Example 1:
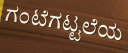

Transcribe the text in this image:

ಗಂಟೆಗಟ್ಟಲೆಯ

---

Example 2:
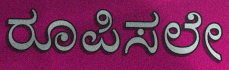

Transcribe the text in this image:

ರೂಪಿಸಲೇ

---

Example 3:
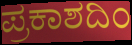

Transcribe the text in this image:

ಪ್ರಕಾಶದಿಂ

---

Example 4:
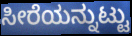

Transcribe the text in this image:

ಸೀರೆಯನ್ನುಟ್ಟು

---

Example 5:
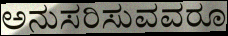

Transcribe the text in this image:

ಅನುಸರಿಸುವವರೂ